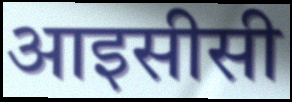
आइसीसी